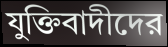
যুক্তিবাদীদের